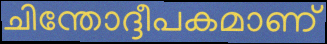
ചിന്തോദ്ദീപകമാണ്